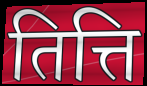
तित्ति